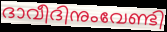
ദാവീദിനുംവേണ്ടി